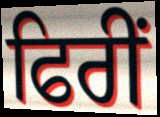
ਫਿਰੀਂ